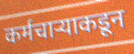
कर्मचाऱ्याकडून